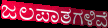
ಜಲಪಾತಗಳಿವೆ